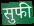
सुफी